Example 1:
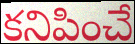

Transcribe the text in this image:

కనిపించే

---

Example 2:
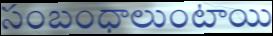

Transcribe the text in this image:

సంబంధాలుంటాయి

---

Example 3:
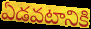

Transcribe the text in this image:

ఏడవటానికి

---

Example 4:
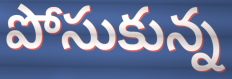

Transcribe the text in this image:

పోసుకున్న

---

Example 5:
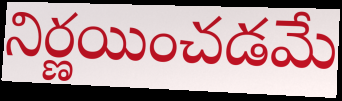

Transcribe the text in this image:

నిర్ణయించడమే